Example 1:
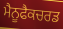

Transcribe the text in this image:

ਮੈਨੂਫੈਕਚਰਡ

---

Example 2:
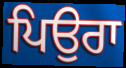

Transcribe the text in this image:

ਪਿਉਰਾ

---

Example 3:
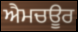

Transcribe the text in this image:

ਐਮਚਊਰ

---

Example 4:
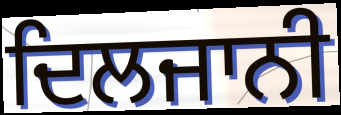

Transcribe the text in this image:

ਦਿਲਜਾਨੀ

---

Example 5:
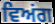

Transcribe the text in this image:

ਵਿਅਂਗ